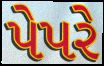
પેપરે